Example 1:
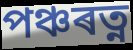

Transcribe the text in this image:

পঞ্চৰত্ন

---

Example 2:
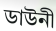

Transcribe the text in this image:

ডাউনী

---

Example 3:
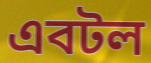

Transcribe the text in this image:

এবটল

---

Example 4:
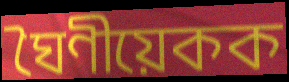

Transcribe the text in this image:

ঘৈণীয়েকক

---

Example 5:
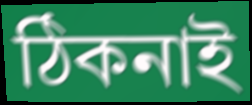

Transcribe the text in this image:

ঠিকনাই